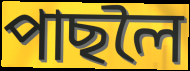
পাছলৈ